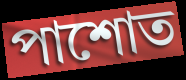
পাশোত